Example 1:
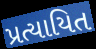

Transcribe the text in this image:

પ્રત્યાયિત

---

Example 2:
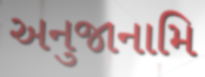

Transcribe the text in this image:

અનુજાનામિ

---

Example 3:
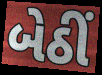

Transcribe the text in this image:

બેઠીં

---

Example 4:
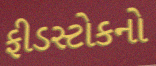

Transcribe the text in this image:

ફીડસ્ટોકનો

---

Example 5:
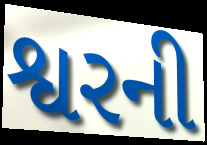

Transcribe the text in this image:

શ્વરની